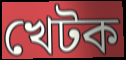
খেটক